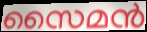
സൈമൻ